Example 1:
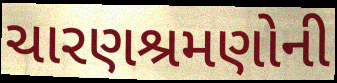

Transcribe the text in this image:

ચારણશ્રમણોની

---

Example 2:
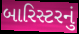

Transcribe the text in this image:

બારિસ્ટરનું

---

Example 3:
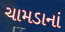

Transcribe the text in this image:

ચામડાનાં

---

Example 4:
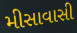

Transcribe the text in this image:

મીસાવાસી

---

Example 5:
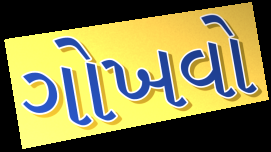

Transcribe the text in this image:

ગોખવો